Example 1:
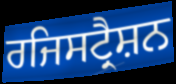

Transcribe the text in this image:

ਰਜਿਸਟ੍ਰੈਸ਼ਨ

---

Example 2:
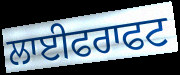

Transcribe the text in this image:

ਲਾਈਫਰਾਫਟ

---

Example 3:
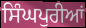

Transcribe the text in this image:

ਸਿੰਘਪੁਰੀਆਂ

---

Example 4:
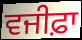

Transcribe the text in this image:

ਵਜੀਫ਼ਾ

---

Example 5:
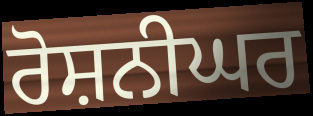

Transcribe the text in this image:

ਰੋਸ਼ਨੀਘਰ